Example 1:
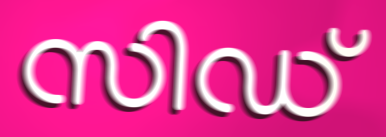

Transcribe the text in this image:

സിഡ്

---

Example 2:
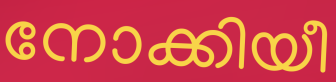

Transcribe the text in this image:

നോക്കിയീ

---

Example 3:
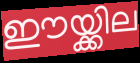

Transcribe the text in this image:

ഈയ്ക്കില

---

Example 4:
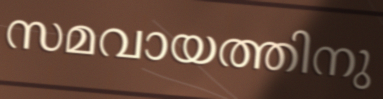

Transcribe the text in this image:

സമവായത്തിനു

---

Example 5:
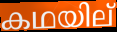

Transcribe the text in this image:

കഥയില്